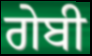
ਗੇਬੀ